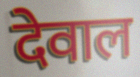
देवाल